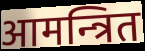
आमन्त्रित